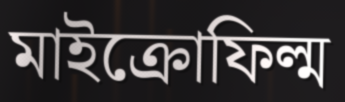
মাইক্রোফিল্ম